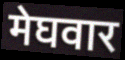
मेघवार